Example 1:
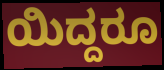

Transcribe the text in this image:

ಯಿದ್ದರೂ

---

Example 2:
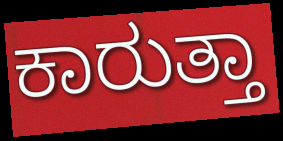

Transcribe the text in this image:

ಕಾರುತ್ತಾ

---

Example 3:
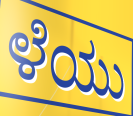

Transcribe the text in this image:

ಳೆಯು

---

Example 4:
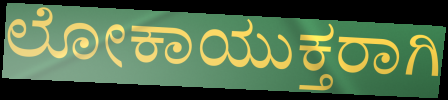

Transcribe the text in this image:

ಲೋಕಾಯುಕ್ತರಾಗಿ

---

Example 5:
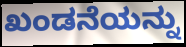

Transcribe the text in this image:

ಖಂಡನೆಯನ್ನು